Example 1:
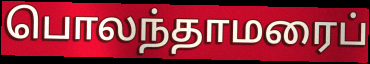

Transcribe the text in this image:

பொலந்தாமரைப்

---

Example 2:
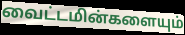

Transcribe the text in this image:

வைட்டமின்களையும்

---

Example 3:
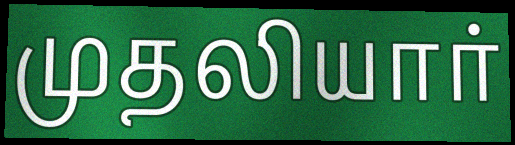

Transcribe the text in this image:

முதலியார்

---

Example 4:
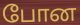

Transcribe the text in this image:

போன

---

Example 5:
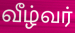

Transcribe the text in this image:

வீழ்வர்